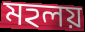
মহলয়